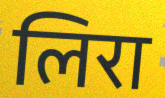
लिरा